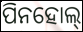
ପିନହୋଲ୍